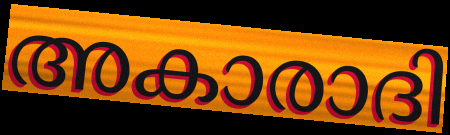
അകാരാദി